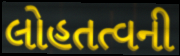
લોહતત્વની